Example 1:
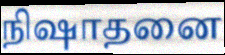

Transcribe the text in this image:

நிஷாதனை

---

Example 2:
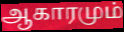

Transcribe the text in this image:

ஆகாரமும்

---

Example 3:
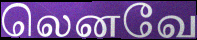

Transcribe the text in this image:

லெனவே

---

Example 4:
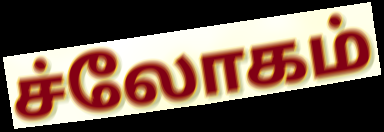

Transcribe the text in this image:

ச்லோகம்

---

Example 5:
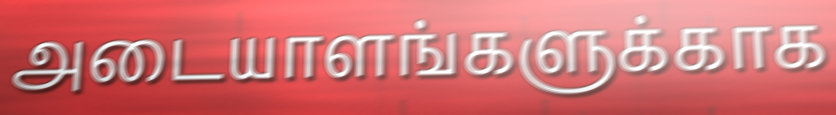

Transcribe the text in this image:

அடையாளங்களுக்காக